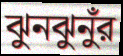
ঝুনঝুনুঁর